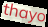
thayo